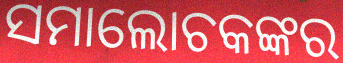
ସମାଲୋଚକଙ୍କର